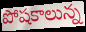
పోషకాలున్న